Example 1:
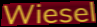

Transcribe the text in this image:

Wiesel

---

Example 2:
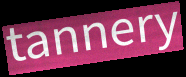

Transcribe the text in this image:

tannery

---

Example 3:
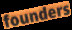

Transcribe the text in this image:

founders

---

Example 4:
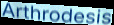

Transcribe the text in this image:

Arthrodesis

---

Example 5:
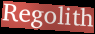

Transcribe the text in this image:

Regolith